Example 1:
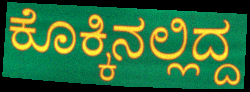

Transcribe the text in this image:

ಕೊಕ್ಕಿನಲ್ಲಿದ್ದ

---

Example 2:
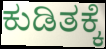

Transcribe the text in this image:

ಕುಡಿತಕ್ಕೆ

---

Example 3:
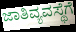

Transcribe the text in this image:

ಜಾತಿವ್ಯವಸ್ಥೆಗೆ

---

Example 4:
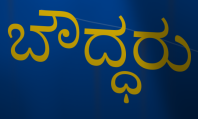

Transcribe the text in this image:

ಬೌದ್ಧರು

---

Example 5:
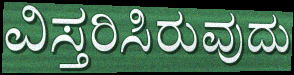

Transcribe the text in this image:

ವಿಸ್ತರಿಸಿರುವುದು